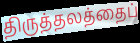
திருத்தலத்தைப்